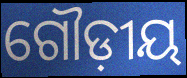
ଗୌଡ଼ୀୟ